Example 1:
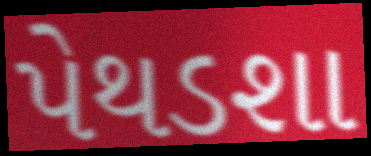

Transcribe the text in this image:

પેથડશા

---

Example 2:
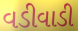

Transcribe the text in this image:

વડીવાડી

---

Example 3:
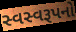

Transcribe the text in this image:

સ્વસ્વરૂપનો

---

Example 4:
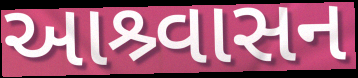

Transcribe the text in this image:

આશ્ર્વાસન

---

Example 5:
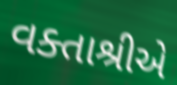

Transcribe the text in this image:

વક્તાશ્રીએ